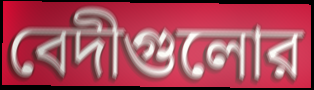
বেদীগুলোর